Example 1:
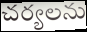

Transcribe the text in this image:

చర్యలను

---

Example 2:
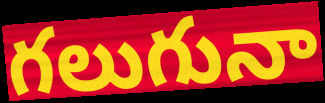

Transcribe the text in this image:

గలుగునా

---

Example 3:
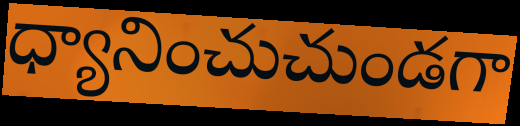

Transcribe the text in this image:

ధ్యానించుచుండగా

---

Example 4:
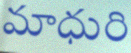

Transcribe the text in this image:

మాధురి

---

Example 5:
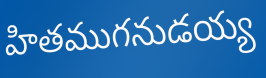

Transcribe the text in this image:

హితముగనుడయ్య